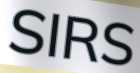
SIRS